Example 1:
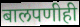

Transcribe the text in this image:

बालपणीही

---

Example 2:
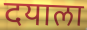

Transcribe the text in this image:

दयाला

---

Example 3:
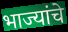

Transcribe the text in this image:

भाज्यांचे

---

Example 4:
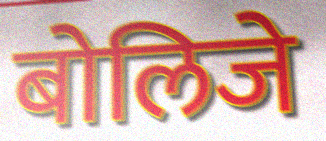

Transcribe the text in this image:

बोलिजे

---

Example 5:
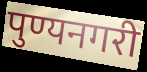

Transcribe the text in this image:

पुण्यनगरी